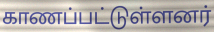
காணப்பட்டுள்ளனர்